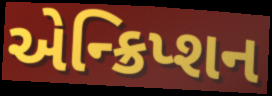
એન્ક્રિપ્શન